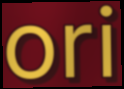
ori